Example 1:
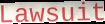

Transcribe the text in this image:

Lawsuit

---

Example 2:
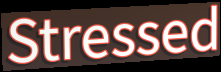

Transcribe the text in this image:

Stressed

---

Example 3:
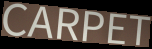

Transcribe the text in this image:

CARPET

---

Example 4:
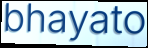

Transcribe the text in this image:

bhayato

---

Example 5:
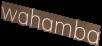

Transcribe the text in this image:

wahamba